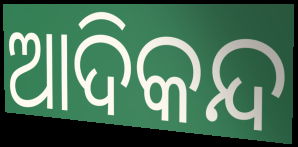
ଆଦିକନ୍ଦ